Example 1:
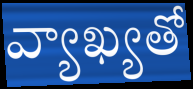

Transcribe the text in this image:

వ్యాఖ్యతో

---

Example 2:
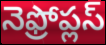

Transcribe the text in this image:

నెఫ్రోప్లస్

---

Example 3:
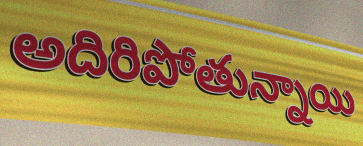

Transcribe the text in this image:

అదిరిపోతున్నాయి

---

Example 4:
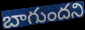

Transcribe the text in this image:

బాగుందని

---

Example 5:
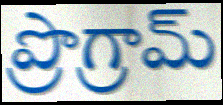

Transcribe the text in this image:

ప్రొగ్రామ్